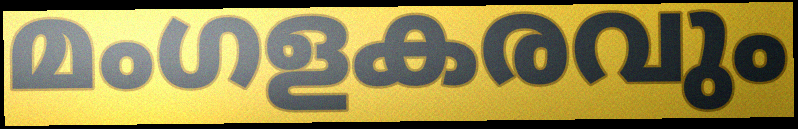
മംഗളകരവും